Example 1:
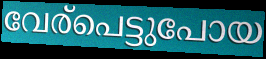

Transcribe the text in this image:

വേര്പെട്ടുപോയ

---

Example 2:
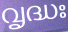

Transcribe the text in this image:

വൃദ്ധഃ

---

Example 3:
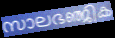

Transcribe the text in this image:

സാലഭഞ്ജിക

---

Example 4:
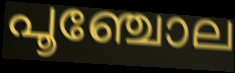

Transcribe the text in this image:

പൂഞ്ചോല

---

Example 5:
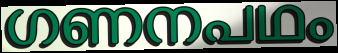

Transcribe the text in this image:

ഗണനപഥം